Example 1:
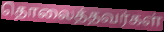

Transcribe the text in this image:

தொலைத்தவர்கள்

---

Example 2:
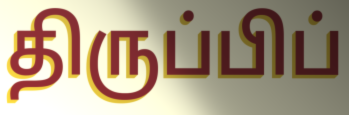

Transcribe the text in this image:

திருப்பிப்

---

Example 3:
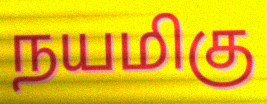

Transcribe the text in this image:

நயமிகு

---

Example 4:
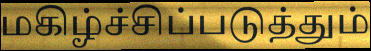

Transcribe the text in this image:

மகிழ்ச்சிப்படுத்தும்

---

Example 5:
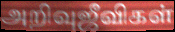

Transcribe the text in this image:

அறிவுஜீவிகள்